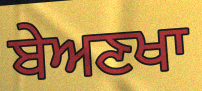
ਬੇਅਣਖਾ